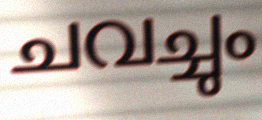
ചവച്ചും